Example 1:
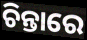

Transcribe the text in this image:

ଚିନ୍ତାରେ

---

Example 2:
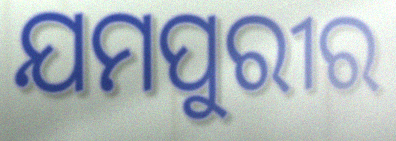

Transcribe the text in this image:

ଯମପୁରୀର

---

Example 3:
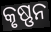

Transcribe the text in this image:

କୃଷ୍ଣନ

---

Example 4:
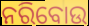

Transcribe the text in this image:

ନରିବୋଉ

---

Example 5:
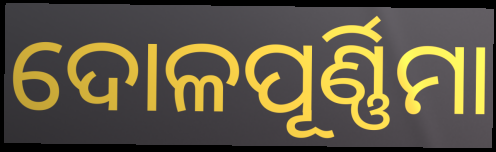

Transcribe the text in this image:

ଦୋଳପୂର୍ଣ୍ଣିମା